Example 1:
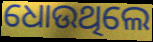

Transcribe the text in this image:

ଧୋଉଥିଲେ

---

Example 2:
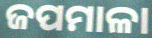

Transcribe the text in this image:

ଜପମାଳା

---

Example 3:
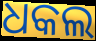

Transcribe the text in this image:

ଧକଲ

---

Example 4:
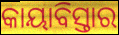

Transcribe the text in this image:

କାୟାବିସ୍ତାର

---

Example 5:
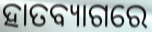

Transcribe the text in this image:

ହାତବ୍ୟାଗରେ